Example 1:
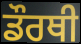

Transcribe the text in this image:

ਡੌਰਥੀ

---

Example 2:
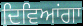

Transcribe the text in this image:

ਦਿਵਿਆਂਗਾ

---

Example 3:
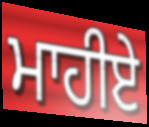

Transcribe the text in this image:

ਮਾਹੀਏ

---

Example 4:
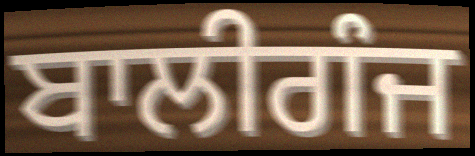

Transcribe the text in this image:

ਬਾਲੀਗੰਜ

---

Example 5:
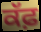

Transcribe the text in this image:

ਕੱਫ਼